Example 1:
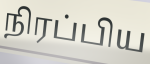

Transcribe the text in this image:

நிரப்பிய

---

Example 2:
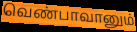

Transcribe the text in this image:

வெண்பாவானும்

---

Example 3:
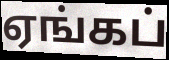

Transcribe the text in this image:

ஏங்கப்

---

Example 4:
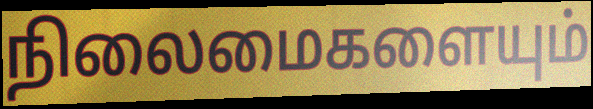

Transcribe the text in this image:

நிலைமைகளையும்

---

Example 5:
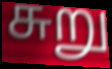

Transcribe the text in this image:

சுறு